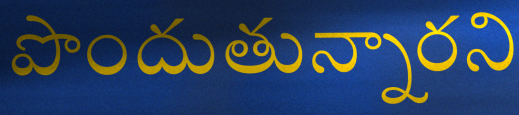
పొందుతున్నారని